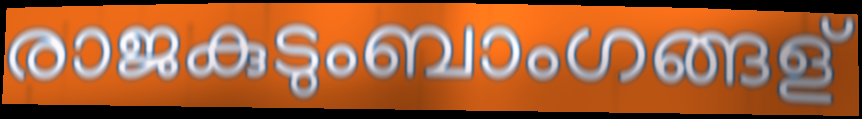
രാജകുടുംബാംഗങ്ങള്